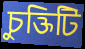
চুক্তিটি